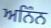
ਅਨਿੰਨ